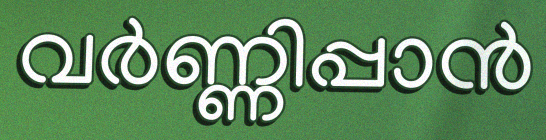
വർണ്ണിപ്പാൻ